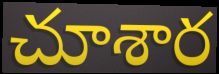
చూశార